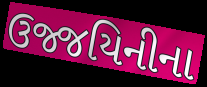
ઉજ્જયિનીના